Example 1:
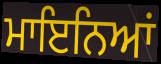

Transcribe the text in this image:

ਮਾਇਨਿਆਂ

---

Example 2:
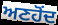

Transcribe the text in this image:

ਅਣਹੋਂਦ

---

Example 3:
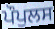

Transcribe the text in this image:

ਪੌਪੁਲਸ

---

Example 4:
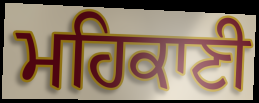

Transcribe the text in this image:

ਮਹਿਕਾਣੀ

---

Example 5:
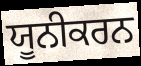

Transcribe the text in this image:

ਯੂਨੀਕਰਨ